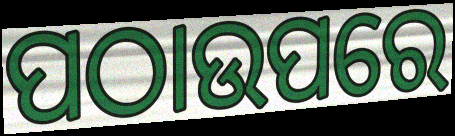
ପଠାଉପରେ